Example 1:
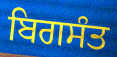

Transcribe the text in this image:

ਬਿਗਸੰਤ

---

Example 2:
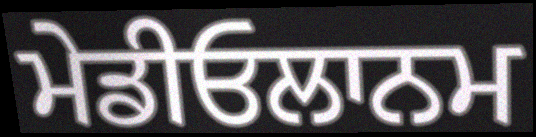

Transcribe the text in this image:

ਮੇਡੀਓਲਾਨਮ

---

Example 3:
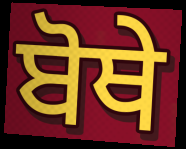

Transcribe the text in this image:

ਬੋਥੇ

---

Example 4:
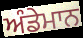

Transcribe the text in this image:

ਅੰਡੇਮਾਨ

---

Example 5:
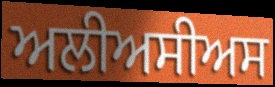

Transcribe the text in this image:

ਅਲੀਅਸੀਅਸ